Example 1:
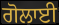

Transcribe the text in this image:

ਗੋਲਾਈ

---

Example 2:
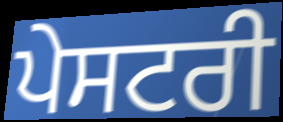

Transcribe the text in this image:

ਪੇਸਟਰੀ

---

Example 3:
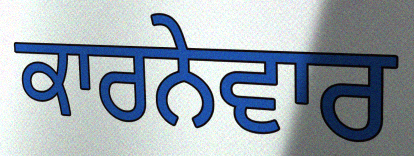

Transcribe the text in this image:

ਕਾਰਨੇਵਾਰ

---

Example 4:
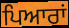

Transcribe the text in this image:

ਪਿਆਰਾਂ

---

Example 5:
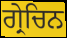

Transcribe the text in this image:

ਗ੍ਰੇਚਿਨ